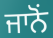
ਜਾਨੋਂ